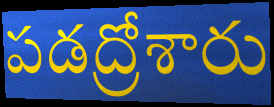
పడద్రోశారు